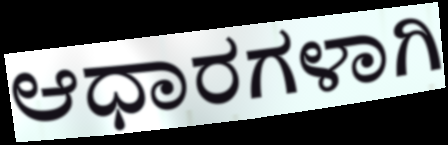
ಆಧಾರಗಳಾಗಿ